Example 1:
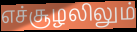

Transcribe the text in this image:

எச்சூழலிலும்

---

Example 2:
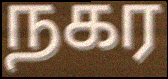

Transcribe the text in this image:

நகர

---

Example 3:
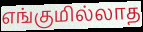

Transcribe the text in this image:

எங்குமில்லாத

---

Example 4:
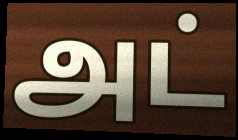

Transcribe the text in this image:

அட்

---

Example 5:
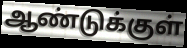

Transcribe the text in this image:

ஆண்டுக்குள்